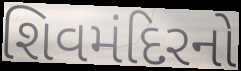
શિવમંદિરનો